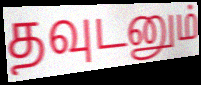
தவுடனும்